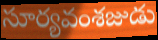
సూర్యవంశజుడు